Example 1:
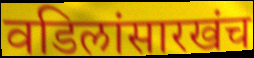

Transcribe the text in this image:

वडिलांसारखंच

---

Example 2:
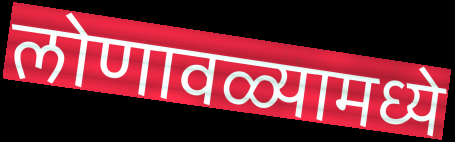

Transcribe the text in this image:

लोणावळ्यामध्ये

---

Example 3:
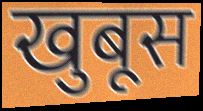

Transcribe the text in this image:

खुबूस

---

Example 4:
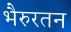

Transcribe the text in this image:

भैरुरतन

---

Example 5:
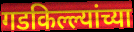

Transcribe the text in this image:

गडकिल्ल्यांच्या